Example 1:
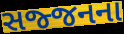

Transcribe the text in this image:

સજ્જનના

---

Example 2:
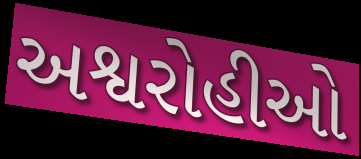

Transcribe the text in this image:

અશ્વરોહીઓ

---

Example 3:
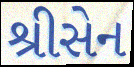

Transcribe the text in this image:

શ્રીસેન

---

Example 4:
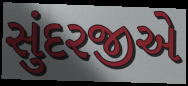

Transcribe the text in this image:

સુંદરજીએ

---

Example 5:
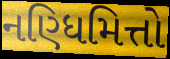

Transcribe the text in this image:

નણ્ધિમિત્તો